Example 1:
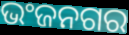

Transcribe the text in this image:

ଭଂଜନଗର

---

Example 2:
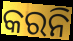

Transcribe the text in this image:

କରନି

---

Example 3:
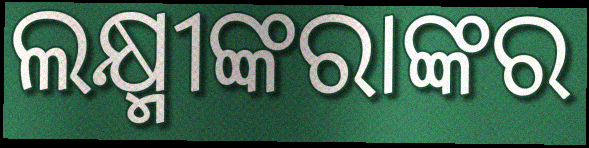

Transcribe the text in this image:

ଲକ୍ଷ୍ମୀଙ୍କରାଙ୍କର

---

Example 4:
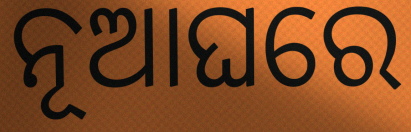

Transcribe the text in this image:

ନୂଆଘରେ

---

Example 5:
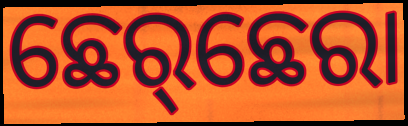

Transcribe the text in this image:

ଛେର୍‌ଛେରା